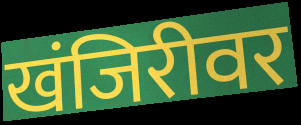
खंजिरीवर